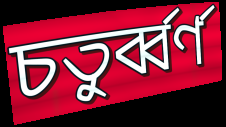
চতুর্ব্বর্ণ